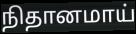
நிதானமாய்